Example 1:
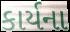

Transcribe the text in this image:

કાર્યના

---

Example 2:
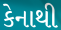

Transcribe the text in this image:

કેનાથી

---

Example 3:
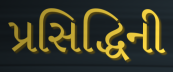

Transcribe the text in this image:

પ્રસિદ્ધિની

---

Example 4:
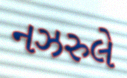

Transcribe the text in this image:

નઝરુલે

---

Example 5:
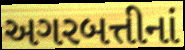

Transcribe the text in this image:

અગરબત્તીનાં